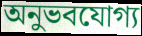
অনুভবযোগ্য